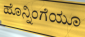
ಹೊನ್ನಿಂಗೆಯೂ